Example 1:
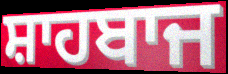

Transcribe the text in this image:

ਸ਼ਾਹਬਾਜ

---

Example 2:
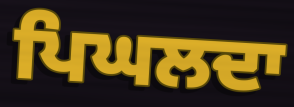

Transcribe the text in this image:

ਪਿਘਲਦਾ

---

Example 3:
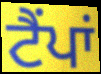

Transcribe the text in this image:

ਟੈਂਪਾਂ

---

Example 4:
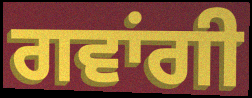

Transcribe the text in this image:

ਗਵਾਂਗੀ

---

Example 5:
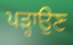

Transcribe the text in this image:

ਪੜ੍ਹਾਉਣ